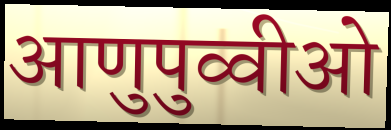
आणुपुव्वीओ